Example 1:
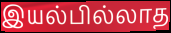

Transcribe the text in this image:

இயல்பில்லாத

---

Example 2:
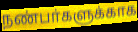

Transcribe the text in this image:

நண்பர்களுக்காக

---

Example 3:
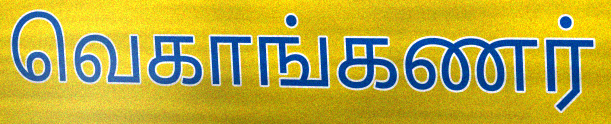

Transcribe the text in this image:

வெகாங்கணர்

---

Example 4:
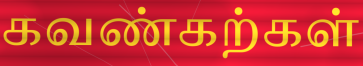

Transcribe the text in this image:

கவண்கற்கள்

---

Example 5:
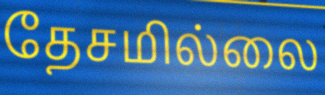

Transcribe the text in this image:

தேசமில்லை